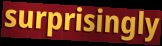
surprisingly